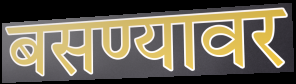
बसण्यावर